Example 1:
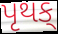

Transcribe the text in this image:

પૃથક્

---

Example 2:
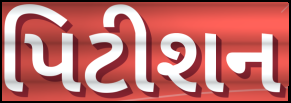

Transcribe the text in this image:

પિટીશન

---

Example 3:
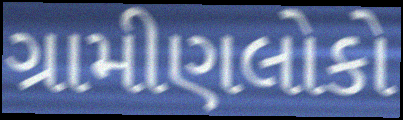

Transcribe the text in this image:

ગ્રામીણલોકો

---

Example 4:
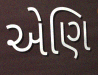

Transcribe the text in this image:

એણિ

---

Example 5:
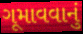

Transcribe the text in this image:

ગૂમાવવાનું